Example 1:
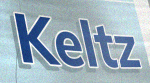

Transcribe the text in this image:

Keltz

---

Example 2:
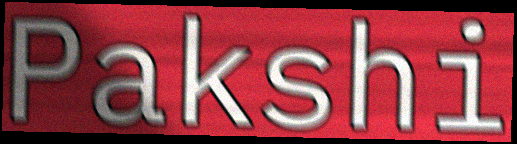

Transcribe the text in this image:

Pakshi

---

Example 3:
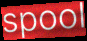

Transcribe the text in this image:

spool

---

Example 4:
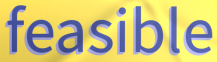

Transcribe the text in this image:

feasible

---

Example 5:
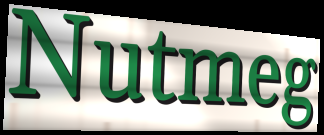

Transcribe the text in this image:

Nutmeg